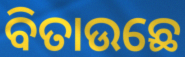
ବିତାଉଛେ